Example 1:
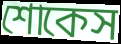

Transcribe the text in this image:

শোকেস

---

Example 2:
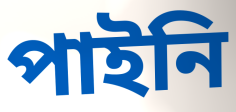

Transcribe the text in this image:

পাইনি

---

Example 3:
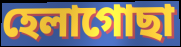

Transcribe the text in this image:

হেলাগোছা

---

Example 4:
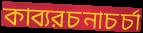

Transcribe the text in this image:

কাব্যরচনাচর্চা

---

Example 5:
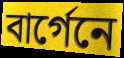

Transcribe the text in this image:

বার্গেনে